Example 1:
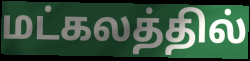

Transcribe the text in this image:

மட்கலத்தில்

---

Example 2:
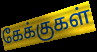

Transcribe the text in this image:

கேக்குகள்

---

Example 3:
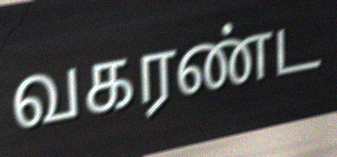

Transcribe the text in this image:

வகரண்ட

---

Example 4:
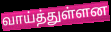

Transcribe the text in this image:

வாய்த்துள்ளன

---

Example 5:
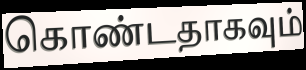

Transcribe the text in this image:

கொண்டதாகவும்